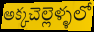
అక్కచెల్లెళ్ళలో